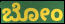
ಬೋಂ